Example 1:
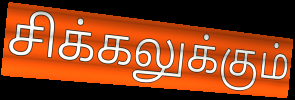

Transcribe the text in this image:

சிக்கலுக்கும்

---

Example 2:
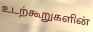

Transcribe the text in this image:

உடற்கூறுகளின்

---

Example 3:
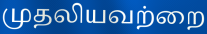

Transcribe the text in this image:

முதலியவற்றை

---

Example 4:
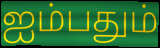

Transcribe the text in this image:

ஐம்பதும்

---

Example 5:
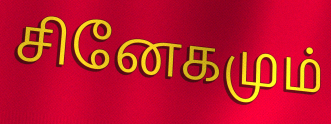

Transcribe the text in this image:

சினேகமும்